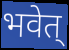
भवेत्